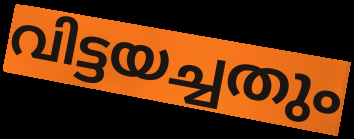
വിട്ടയച്ചതും